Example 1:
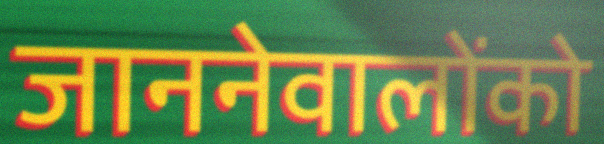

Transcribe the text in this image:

जाननेवालोंको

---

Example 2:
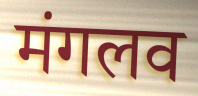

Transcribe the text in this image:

मंगलव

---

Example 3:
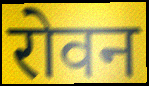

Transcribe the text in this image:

रोवन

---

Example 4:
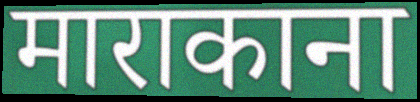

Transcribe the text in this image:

माराकाना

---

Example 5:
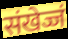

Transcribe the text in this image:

संखेज्जं